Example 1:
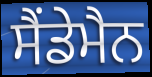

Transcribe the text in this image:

ਸੈਂਡੇਮੈਨ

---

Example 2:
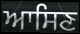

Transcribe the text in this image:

ਆਸਿਣ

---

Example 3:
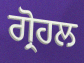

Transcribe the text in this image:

ਗ੍ਰੋਹਲ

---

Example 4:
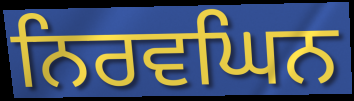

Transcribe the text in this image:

ਨਿਰਵਘਿਨ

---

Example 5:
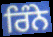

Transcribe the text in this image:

ਰਿੰਨੇ